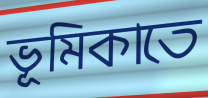
ভূমিকাতে